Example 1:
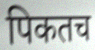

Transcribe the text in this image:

पिकतच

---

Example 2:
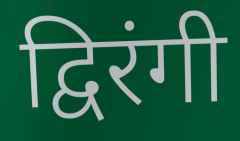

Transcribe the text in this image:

द्विरंगी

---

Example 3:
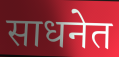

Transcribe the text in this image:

साधनेत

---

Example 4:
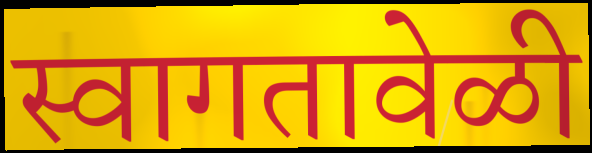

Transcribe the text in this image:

स्वागतावेळी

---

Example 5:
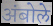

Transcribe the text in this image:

अंबोले